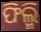
ଫିଲ୍ମି